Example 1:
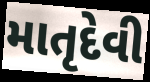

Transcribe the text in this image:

માતૃદેવી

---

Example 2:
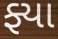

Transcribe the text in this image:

ફ્યા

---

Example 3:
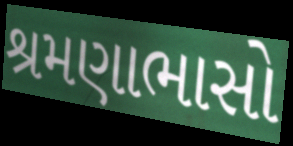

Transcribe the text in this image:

શ્રમણાભાસો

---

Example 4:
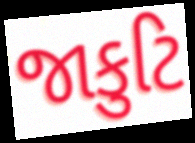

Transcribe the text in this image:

જાકુટિ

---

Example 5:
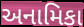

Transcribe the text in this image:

અનામિકા